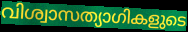
വിശ്വാസത്യാഗികളുടെ